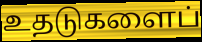
உதடுகளைப்